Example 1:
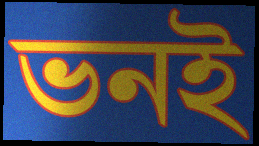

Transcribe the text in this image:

ভনই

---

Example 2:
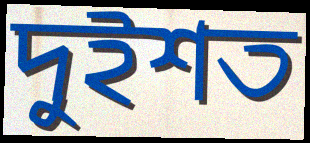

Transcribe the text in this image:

দুইশত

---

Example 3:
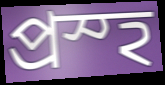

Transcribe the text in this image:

প্রস্হ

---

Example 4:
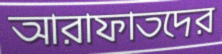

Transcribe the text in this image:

আরাফাতদের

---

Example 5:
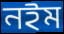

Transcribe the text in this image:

নইম